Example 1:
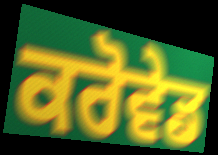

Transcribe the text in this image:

ਕਰੋਵੇਡ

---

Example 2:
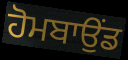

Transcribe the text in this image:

ਹੋਮਬਾਉਂਡ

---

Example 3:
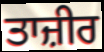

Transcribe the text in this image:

ਤਾਜ਼ੀਰ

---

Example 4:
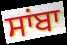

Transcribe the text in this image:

ਸਾਂਬਾ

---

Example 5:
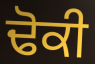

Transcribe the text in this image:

ਢੋਕੀ